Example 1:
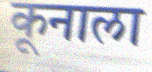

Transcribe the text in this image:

कूनाला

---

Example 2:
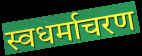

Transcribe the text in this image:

स्वधर्माचरण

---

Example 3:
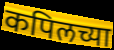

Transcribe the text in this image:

कपिलच्या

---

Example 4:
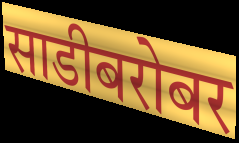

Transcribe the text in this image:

साडीबरोबर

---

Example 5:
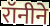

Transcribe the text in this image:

रॉनीने